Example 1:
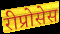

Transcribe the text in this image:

रीप्रोसेस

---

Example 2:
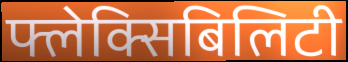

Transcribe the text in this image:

फ्लेक्सिबिलिटी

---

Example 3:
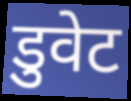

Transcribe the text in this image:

डुवेट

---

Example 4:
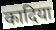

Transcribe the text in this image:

कादिया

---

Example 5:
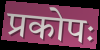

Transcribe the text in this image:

प्रकोपः